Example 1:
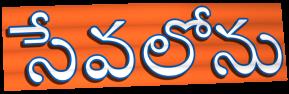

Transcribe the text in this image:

సేవలోను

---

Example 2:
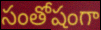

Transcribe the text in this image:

సంతోషంగా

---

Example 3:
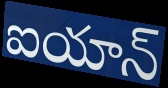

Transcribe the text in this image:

ఐయాన్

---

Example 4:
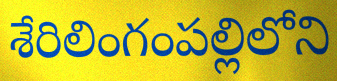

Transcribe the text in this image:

శేరిలింగంపల్లిలోని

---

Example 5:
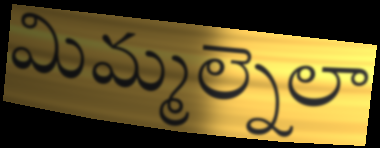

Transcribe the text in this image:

మిమ్మల్నెలా